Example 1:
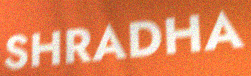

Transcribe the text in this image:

SHRADHA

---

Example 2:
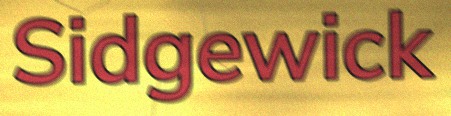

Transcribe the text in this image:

Sidgewick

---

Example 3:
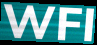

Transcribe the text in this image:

WFI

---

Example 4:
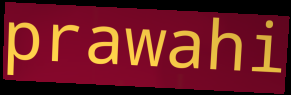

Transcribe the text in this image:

prawahi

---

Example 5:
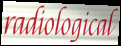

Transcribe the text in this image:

radiological